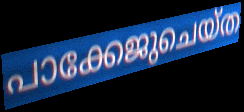
പാക്കേജുചെയ്ത